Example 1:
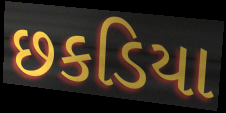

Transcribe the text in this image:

છકડિયા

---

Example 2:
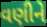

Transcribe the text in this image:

વણીને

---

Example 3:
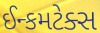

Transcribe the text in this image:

ઈન્કમટેક્સ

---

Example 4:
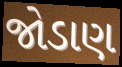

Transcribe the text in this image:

જોડાણ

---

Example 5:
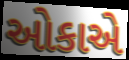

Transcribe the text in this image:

ઓકાએ